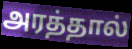
அரத்தால்